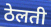
ठेलती